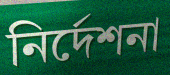
নির্দেশনা